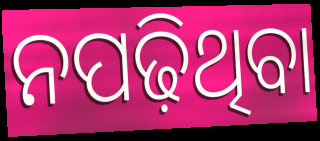
ନପଢ଼ିଥିବା